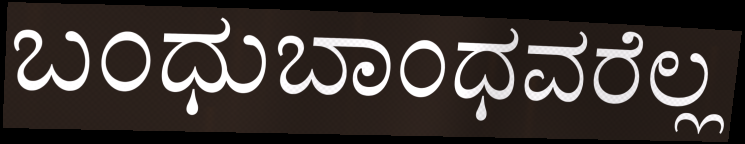
ಬಂಧುಬಾಂಧವರೆಲ್ಲ